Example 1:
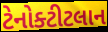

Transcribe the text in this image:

ટેનોક્ટીટલાન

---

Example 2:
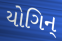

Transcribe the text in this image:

યોગિન્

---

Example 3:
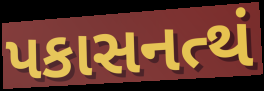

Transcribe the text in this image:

પકાસનત્થં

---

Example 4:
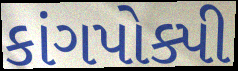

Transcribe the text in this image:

કાંગપોક્પી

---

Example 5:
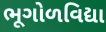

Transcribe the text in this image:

ભૂગોળવિદ્યા